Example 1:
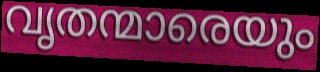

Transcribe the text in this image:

വൃതന്മാരെയും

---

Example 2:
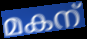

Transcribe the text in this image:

മകന്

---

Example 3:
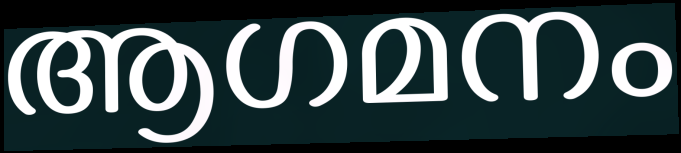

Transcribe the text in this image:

ആഗമനം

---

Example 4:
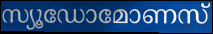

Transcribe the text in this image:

സ്യൂഡോമോണസ്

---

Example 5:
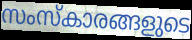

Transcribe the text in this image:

സംസ്കാരങ്ങളുടെ